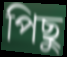
পিছু